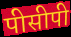
पीसीपी